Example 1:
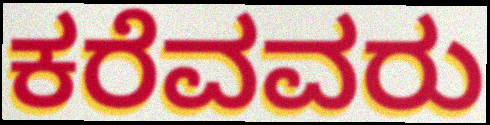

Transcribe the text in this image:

ಕರೆವವರು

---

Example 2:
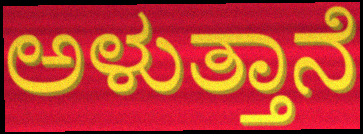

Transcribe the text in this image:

ಅಳುತ್ತಾನೆ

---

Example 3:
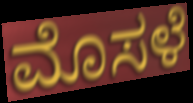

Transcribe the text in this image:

ಮೊಸಳೆ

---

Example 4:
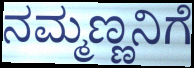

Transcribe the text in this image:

ನಮ್ಮಣ್ಣನಿಗೆ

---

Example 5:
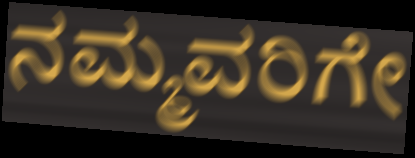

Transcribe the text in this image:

ನಮ್ಮವರಿಗೇ